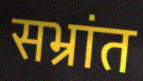
सभ्रांत